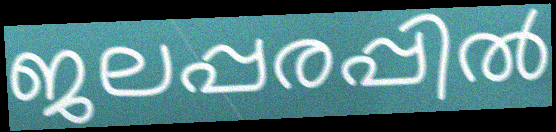
ജലപ്പരപ്പിൽ